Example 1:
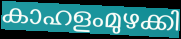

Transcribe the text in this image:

കാഹളംമുഴക്കി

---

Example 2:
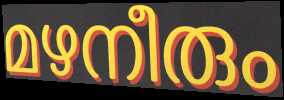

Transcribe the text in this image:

മഴനീരും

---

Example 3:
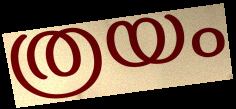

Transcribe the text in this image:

ത്രയം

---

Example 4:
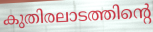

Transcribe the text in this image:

കുതിരലാടത്തിന്റെ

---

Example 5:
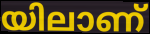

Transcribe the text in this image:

യിലാണ്